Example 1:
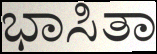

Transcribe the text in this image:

ಭಾಸಿತಾ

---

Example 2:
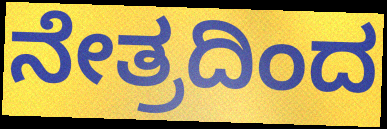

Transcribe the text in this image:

ನೇತ್ರದಿಂದ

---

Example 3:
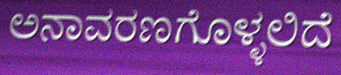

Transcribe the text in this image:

ಅನಾವರಣಗೊಳ್ಳಲಿದೆ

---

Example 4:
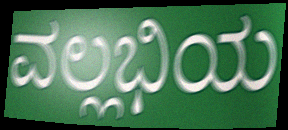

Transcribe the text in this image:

ವಲ್ಲಭಿಯ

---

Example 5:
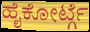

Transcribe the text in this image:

ಹೈಕೋರ್ಟ್ಗೆ